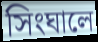
সিংঘালে